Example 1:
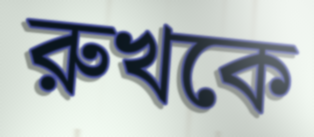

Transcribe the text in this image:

রুখকে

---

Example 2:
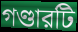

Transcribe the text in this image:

গণ্ডারটি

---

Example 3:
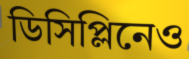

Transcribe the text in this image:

ডিসিপ্লিনেও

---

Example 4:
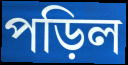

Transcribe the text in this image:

পড়িল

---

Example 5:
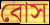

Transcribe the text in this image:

বোস